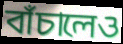
বাঁচালেও